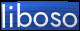
liboso